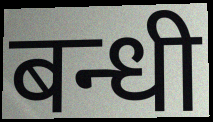
बन्धी